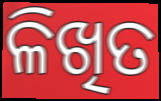
ଳିଖିତ